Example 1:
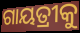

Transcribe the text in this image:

ଗାୟତ୍ରୀକୁ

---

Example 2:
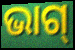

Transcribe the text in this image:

ଭାଗ୍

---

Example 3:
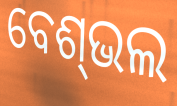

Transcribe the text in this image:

ବେଶ୍‌ଭଲ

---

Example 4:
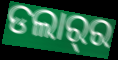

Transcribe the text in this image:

ଡଲାର୍‌ର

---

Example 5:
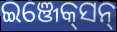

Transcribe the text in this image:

ଇଞ୍ଜେକ୍‍ସନ୍